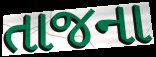
તાજના